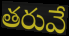
తరువే